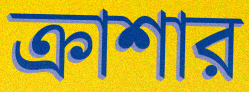
ক্রাশার